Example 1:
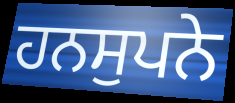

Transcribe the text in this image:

ਹਨਸੁਪਨੇ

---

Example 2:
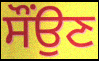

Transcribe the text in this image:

ਸੌਂਉਣ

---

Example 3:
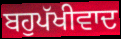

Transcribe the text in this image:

ਬਹੁਪੱਖੀਵਾਦ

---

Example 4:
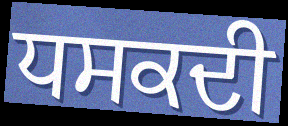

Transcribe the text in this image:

ਧਸਕਦੀ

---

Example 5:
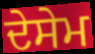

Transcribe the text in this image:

ਦੇਸੇਮ